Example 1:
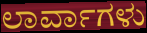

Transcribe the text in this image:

ಲಾರ್ವಾಗಳು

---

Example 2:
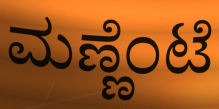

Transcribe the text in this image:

ಮಣ್ಣೆಂಟೆ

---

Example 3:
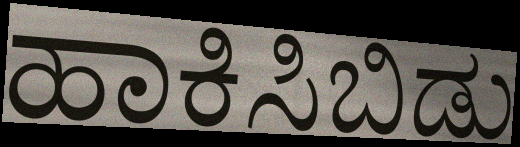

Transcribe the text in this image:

ಹಾಕಿಸಿಬಿಡು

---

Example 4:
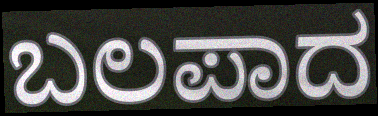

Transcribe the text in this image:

ಬಲಪಾದ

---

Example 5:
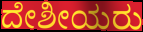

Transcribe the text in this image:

ದೇಶೀಯರು